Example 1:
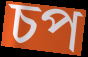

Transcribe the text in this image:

চপ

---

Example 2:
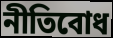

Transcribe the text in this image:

নীতিবোধ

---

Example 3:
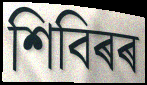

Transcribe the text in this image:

শিবিৰৰ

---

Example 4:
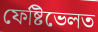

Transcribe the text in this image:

ফেষ্টিভেলত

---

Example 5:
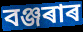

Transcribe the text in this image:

বঞ্জৰাৰ